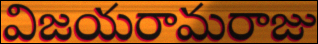
విజయరామరాజు